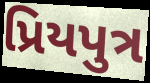
પ્રિયપુત્ર